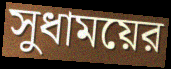
সুধাময়ের